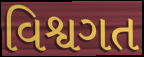
વિશ્વગત